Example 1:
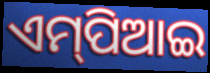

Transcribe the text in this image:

ଏମ୍‌ପିଆଇ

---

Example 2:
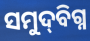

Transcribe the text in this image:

ସମୁଦ୍‌ବିଗ୍ନ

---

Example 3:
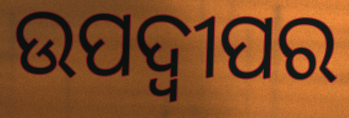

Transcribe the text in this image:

ଉପଦ୍ୱୀପର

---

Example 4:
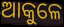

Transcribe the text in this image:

ଆକୁଳେ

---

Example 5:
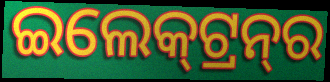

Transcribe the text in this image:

ଇଲେକ୍‍ଟ୍ରନ୍‍ର